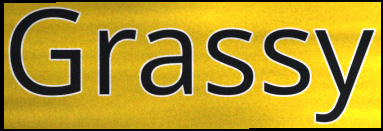
Grassy